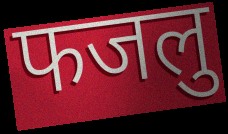
फजलु